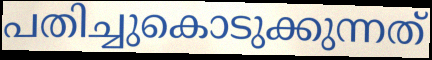
പതിച്ചുകൊടുക്കുന്നത്